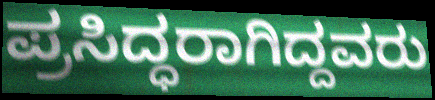
ಪ್ರಸಿದ್ಧರಾಗಿದ್ದವರು